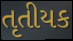
તૃતીયક